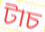
টাচ